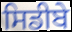
ਸਿਡੀਬੇ